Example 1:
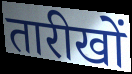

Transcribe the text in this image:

तारीखों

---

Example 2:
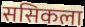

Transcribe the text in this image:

ससिकला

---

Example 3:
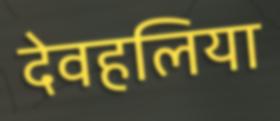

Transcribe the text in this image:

देवहलिया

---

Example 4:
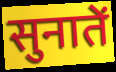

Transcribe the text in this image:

सुनातें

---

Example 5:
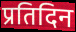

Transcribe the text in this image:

प्रतिदिन